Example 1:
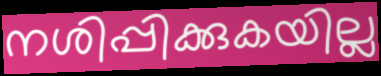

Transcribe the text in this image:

നശിപ്പിക്കുകയില്ല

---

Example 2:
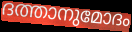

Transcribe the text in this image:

ദത്താനുമോദം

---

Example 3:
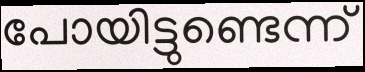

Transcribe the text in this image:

പോയിട്ടുണ്ടെന്ന്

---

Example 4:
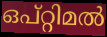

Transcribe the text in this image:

ഒപ്റ്റിമൽ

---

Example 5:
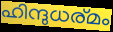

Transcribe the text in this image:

ഹിന്ദുധര്മം